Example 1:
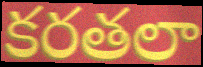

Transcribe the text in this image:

కరతలా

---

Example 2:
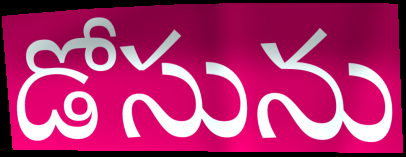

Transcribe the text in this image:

డోసును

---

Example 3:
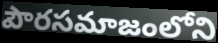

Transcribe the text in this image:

పౌరసమాజంలోని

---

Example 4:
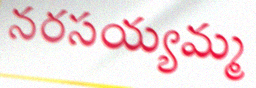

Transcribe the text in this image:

నరసయ్యమ్మ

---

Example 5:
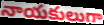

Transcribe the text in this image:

నాయకులుగా